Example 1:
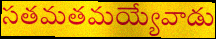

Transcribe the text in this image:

సతమతమయ్యేవాడు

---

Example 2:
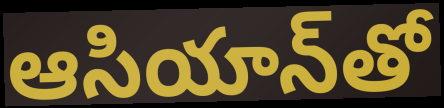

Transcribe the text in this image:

ఆసియాన్‌తో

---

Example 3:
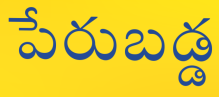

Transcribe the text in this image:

పేరుబడ్డ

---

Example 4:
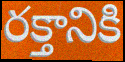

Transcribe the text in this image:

రక్తానికి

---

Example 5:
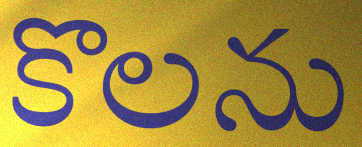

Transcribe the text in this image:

కొలను